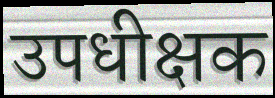
उपधीक्षक